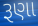
રૂણા